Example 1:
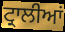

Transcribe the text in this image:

ਟ੍ਰਾਲੀਆਂ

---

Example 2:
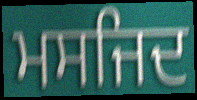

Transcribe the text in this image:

ਮਸਜਿਦ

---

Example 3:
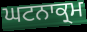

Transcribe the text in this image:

ਘਟਨਾਕ੍ਰਮ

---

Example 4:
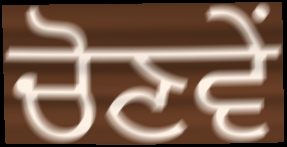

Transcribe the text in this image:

ਚੋਣਵੇਂ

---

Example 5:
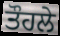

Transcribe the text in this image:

ਤੌਹਲੇ